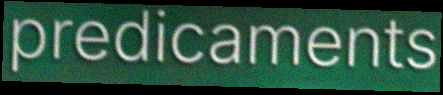
predicaments